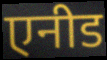
एनीड